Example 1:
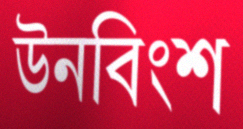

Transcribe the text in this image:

উনবিংশ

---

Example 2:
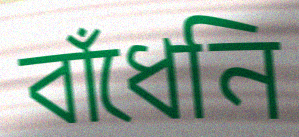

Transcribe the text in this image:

বাঁধেনি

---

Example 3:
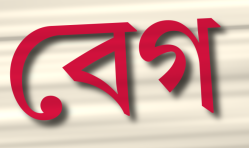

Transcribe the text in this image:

বেগ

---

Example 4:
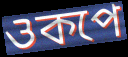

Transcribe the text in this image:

ওকপে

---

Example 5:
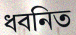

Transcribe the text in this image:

ধবনিত